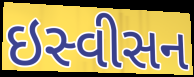
ઇસ્વીસન